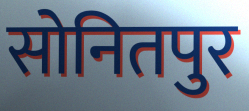
सोनितपुर